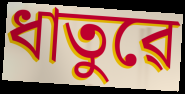
ধাতুৱে